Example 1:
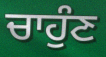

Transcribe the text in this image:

ਚਾਹੁੰਣ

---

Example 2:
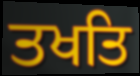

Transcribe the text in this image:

ਤਖਤਿ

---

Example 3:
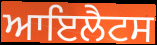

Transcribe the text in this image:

ਆਇਲੈਟਸ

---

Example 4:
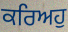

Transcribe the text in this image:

ਕਰਿਅਹੁ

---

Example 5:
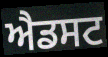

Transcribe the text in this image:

ਐਡਸਟ